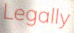
Legally